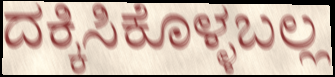
ದಕ್ಕಿಸಿಕೊಳ್ಳಬಲ್ಲ